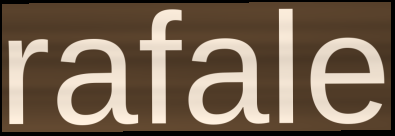
rafale